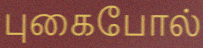
புகைபோல்